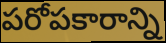
పరోపకారాన్ని